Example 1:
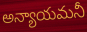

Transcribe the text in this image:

అన్యాయమనీ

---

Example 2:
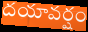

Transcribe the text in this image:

దయావర్షం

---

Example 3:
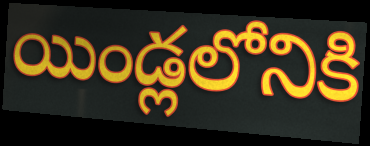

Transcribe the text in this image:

యిండ్లలోనికి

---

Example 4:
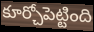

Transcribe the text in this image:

కూర్చోపెట్టింది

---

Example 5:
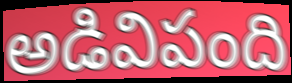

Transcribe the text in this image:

అడివిపంది